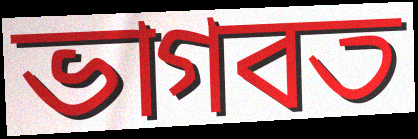
ভাগবত